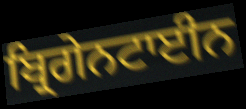
ਬ੍ਰਿਗੇਨਟਾਈਨ